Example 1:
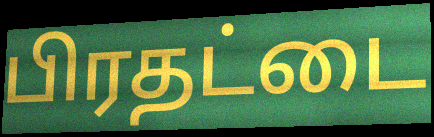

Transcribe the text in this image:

பிரதட்டை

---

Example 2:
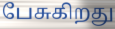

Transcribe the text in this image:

பேசுகிறது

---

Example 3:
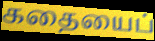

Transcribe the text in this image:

கதையைப்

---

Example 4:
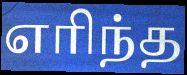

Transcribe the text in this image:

எரிந்த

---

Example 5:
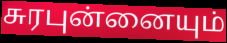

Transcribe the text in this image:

சுரபுன்னையும்